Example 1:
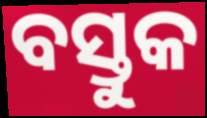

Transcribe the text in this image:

ବସ୍ତୁକ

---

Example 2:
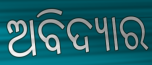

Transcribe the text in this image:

ଅବିଦ୍ୟାର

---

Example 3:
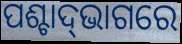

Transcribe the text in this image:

ପଶ୍ଚାଦ୍‍ଭାଗରେ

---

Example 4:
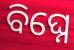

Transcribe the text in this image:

ବିଘ୍ନେ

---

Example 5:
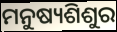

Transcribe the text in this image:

ମନୁଷ୍ୟଶିଶୁର